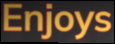
Enjoys